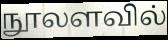
நூலளவில்